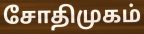
சோதிமுகம்